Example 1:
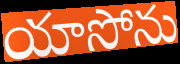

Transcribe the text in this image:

యాసోను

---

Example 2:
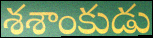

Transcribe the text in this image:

శశాంకుడు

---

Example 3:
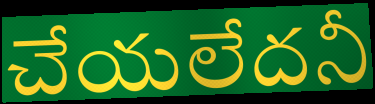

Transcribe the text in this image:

చేయలేదనీ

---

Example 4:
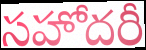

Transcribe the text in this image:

సహోదరీ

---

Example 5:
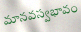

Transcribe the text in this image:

మానవస్వభావం